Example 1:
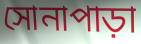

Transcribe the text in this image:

সোনাপাড়া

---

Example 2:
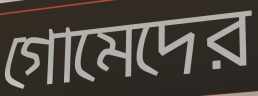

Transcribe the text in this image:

গোমেদের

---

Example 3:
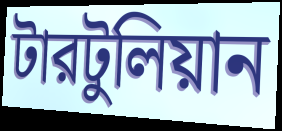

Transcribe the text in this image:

টারটুলিয়ান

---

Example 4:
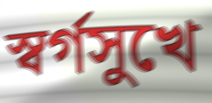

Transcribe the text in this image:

স্বর্গসুখে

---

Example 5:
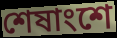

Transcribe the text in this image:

শেষাংশে